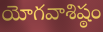
యోగవాశిష్ఠం